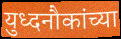
युध्दनौकांच्या